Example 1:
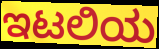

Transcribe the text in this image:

ಇಟಲಿಯ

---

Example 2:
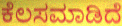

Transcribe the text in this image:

ಕೆಲಸಮಾಡಿದೆ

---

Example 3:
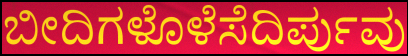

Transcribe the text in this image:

ಬೀದಿಗಳೊಳೆಸೆದಿರ್ಪುವು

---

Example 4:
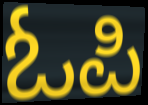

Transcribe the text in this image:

ಓಪಿ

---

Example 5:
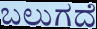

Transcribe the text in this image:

ಬಲುಗದೆ